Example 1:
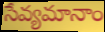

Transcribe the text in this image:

సేవ్యమానాం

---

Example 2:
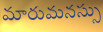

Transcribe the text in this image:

మారుమనస్సు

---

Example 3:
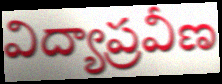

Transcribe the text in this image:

విద్యాప్రవీణ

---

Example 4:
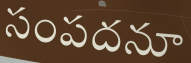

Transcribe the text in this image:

సంపదనూ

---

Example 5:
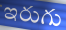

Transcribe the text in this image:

ఇరుగు